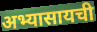
अभ्यासायची